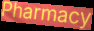
Pharmacy